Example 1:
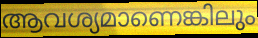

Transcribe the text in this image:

ആവശ്യമാണെങ്കിലും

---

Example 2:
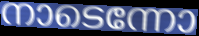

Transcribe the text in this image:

നാടെന്നോ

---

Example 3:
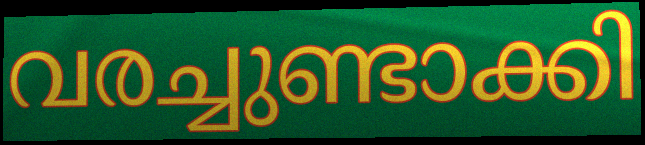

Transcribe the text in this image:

വരച്ചുണ്ടാക്കി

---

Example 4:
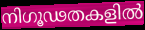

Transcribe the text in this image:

നിഗൂഢതകളിൽ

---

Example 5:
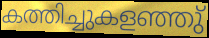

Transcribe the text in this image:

കത്തിച്ചുകളഞ്ഞു്